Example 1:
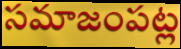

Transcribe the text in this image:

సమాజంపట్ల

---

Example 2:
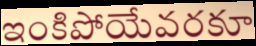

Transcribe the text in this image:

ఇంకిపోయేవరకూ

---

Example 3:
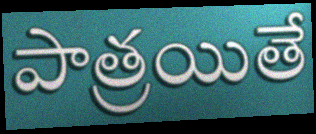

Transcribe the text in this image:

పాత్రయితే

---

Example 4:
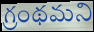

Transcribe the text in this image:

గ్రంథమని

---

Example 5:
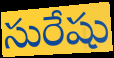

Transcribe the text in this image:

సురేషు